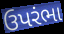
ઉપરંભા